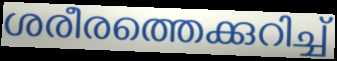
ശരീരത്തെക്കുറിച്ച്